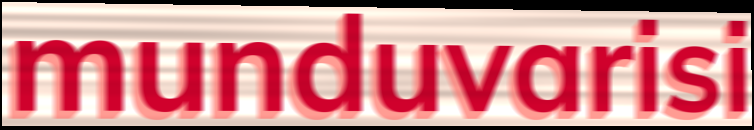
munduvarisi